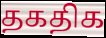
தகதிக